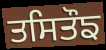
ਤਸਿਤੌਙ